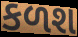
કળશ